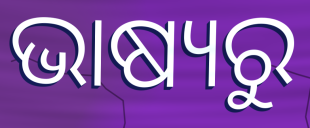
ଭାଷ୍ୟରୁ